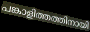
പങ്കാളിത്തത്തിനായി